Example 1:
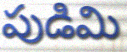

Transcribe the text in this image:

పుడిమి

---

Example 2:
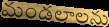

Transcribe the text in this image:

మండలాలను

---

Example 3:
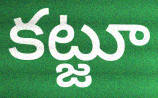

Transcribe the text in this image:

కట్జూ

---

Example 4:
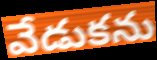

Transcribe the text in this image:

వేడుకను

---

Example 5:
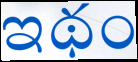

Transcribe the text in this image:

ఇథం